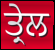
ਤ੍ਰੇਲ